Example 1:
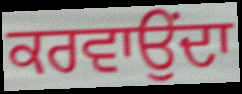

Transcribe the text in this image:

ਕਰਵਾਉਂਦਾ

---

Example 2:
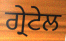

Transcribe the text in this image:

ਗ੍ਰੇਟੇਲ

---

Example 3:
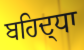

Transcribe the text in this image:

ਬਹਿਦ੍ਧਾ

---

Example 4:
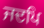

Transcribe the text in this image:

ਜਦਪਿ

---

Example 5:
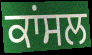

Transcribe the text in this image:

ਕਾਂਸਲ